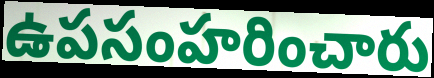
ఉపసంహరించారు